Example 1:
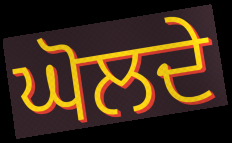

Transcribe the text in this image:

ਘੋਲਦੇ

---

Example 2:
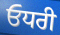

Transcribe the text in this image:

ਓਧਰੀ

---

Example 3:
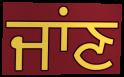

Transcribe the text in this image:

ਜਾਂਣ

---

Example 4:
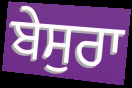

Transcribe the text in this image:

ਬੇਸੁਰਾ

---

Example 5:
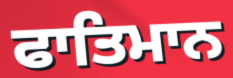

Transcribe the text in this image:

ਫਾਤਿਮਾਨ